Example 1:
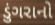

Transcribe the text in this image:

ડુંગરાનો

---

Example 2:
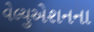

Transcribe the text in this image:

વેલ્યુએશનના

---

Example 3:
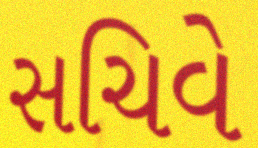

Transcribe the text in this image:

સચિવે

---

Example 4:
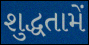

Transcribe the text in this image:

શુદ્ધતામેં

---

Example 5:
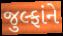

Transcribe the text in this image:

જુલ્ફાંને